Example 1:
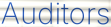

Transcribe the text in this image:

Auditors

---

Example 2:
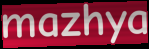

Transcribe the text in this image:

mazhya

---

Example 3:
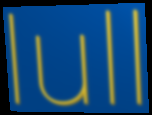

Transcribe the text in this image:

lull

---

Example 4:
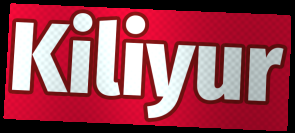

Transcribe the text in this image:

Kiliyur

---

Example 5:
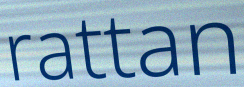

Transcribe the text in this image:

rattan